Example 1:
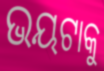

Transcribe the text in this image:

ଭୟଟାକୁ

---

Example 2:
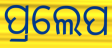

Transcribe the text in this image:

ପ୍ରଲେପ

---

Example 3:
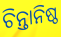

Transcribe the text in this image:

ଚିନ୍ତାନିଷ୍ଠ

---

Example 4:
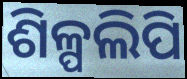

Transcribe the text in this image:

ଶିଳ୍ପଲିପି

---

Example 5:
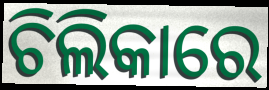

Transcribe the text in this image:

ଚିଲିକାରେ